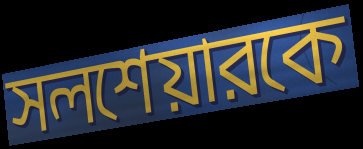
সলশেয়ারকে